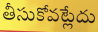
తీసుకోవట్లేదు